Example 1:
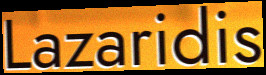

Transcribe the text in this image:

Lazaridis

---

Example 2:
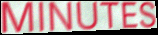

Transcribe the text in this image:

MINUTES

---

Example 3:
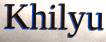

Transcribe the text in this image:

Khilyu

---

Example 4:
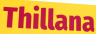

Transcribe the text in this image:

Thillana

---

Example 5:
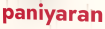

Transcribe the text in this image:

paniyaran